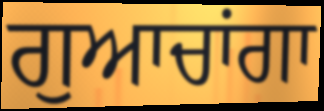
ਗੁਆਚਾਂਗਾ